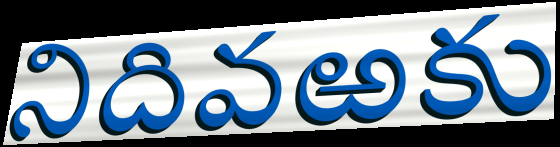
నిదివఱకు